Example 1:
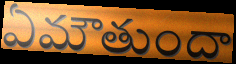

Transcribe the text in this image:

ఏమౌతుందా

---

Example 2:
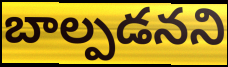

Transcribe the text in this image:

బాల్పడనని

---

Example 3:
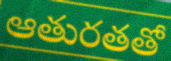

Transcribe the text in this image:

ఆతురతతో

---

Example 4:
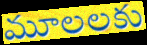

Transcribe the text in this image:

మూలలకు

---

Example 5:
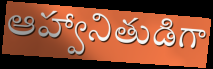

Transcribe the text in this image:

ఆహ్వానితుడిగా